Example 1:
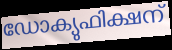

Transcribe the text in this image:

ഡോക്യുഫിക്ഷന്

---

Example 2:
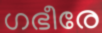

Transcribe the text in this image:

ഗഭീരേ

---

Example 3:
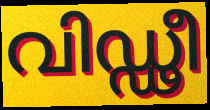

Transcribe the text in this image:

വിഡ്ഢീ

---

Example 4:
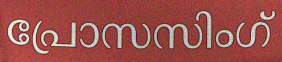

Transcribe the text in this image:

പ്രോസസിംഗ്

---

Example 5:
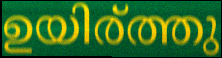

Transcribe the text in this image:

ഉയിര്ത്തു